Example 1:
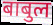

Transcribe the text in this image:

बाबुल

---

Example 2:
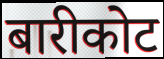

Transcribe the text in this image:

बारीकोट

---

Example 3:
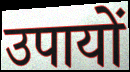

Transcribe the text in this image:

उपायों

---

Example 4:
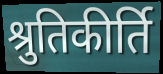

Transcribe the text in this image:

श्रुतिकीर्ति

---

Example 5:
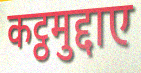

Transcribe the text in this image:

कट्ठमुद्दाए